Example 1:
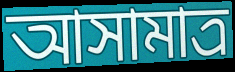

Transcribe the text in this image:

আসামাত্র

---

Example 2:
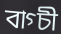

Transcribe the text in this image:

বাগ্চী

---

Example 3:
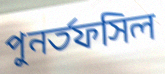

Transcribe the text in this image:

পুনর্তফসিল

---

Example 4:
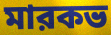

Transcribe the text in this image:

মারকভ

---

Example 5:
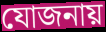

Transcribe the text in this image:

যোজনায়